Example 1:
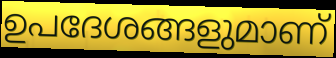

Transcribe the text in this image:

ഉപദേശങ്ങളുമാണ്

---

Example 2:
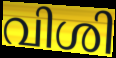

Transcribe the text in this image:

വിശി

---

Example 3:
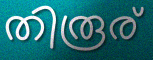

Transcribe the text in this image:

തിരൂര്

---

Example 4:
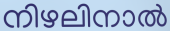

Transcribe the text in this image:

നിഴലിനാൽ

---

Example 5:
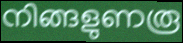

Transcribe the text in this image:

നിങ്ങളുണരൂ